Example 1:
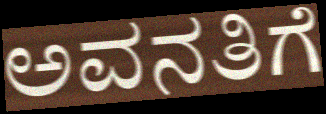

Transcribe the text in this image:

ಅವನತಿಗೆ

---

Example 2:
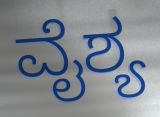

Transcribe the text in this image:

ವೈಶ್ಯ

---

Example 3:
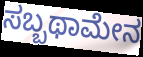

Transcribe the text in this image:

ಸಬ್ಬಥಾಮೇನ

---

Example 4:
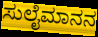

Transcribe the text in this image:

ಸುಲೈಮಾನನ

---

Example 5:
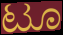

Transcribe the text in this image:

ಟೂ